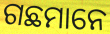
ଗଛମାନେ